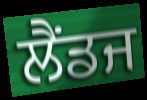
ਲੈਂਡਜ